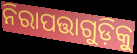
ନିରାପତ୍ତାଗୁଡ଼ିକୁ